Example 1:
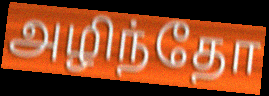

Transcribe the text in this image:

அழிந்தோ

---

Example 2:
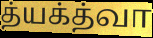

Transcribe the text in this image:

த்யக்த்வா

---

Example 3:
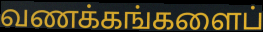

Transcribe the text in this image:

வணக்கங்களைப்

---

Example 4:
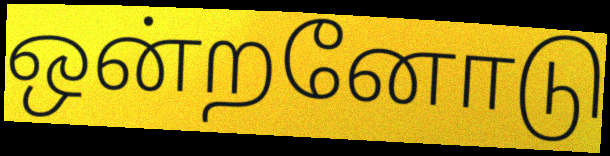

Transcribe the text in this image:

ஒன்றனோடு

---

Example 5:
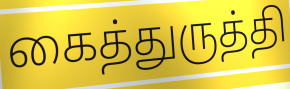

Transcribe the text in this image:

கைத்துருத்தி